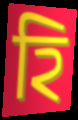
হি